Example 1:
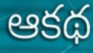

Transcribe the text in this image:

ఆకథ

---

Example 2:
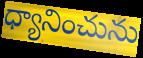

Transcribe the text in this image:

ధ్యానించును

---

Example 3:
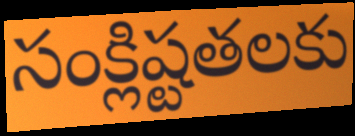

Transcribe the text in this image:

సంక్లిష్టతలకు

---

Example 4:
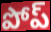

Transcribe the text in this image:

పోప్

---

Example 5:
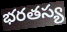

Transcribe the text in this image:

భరతస్య